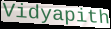
Vidyapith